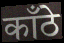
काँठे